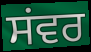
ਸਂਵਰ